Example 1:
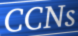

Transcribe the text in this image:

CCNs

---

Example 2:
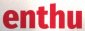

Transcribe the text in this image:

enthu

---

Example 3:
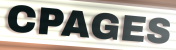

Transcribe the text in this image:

CPAGES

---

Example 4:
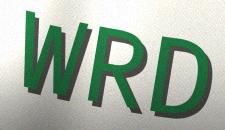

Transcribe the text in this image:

WRD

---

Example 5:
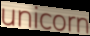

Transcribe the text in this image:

unicorn